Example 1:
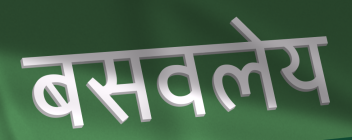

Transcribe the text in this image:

बसवलेय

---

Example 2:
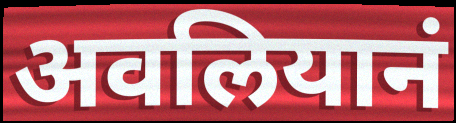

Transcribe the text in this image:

अवलियानं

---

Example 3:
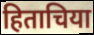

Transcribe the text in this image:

हिताचिया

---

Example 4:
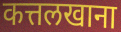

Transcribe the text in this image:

कत्तलखाना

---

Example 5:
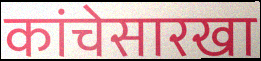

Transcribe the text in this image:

कांचेसारखा